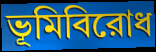
ভূমিবিরোধ